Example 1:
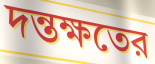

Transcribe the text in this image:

দন্তক্ষতের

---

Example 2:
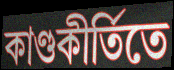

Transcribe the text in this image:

কাণ্ডকীর্তিতে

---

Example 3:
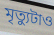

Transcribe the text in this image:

মৃত্যুটাও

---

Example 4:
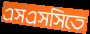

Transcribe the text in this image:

এসএসসিতে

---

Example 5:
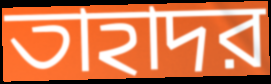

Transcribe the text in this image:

তাহাদর